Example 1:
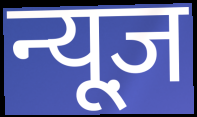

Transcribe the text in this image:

न्‍यूज़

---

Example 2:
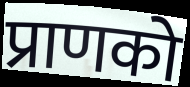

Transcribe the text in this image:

प्राणको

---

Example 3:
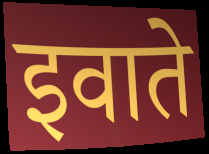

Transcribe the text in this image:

इवाते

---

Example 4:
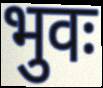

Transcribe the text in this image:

भुवः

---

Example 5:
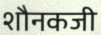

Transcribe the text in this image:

शौनकजी